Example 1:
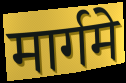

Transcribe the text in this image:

मार्गमे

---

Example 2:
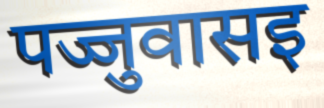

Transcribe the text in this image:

पज्जुवासइ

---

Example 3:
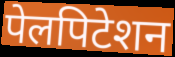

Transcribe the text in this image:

पेलपिटेशन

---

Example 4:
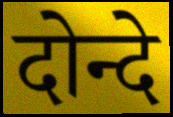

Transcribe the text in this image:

दोन्दे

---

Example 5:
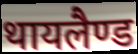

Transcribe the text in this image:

थायलैण्ड